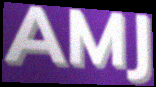
AMJ